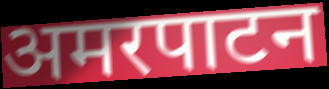
अमरपाटन